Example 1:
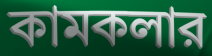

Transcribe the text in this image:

কামকলার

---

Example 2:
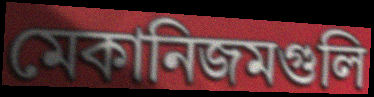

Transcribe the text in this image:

মেকানিজমগুলি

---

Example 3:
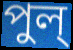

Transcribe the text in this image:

পুল্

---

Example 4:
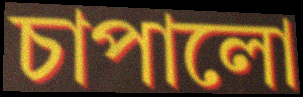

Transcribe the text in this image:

চাপালো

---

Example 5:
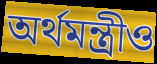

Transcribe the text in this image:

অর্থমন্ত্রীও